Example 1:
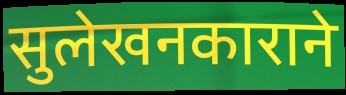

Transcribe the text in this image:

सुलेखनकाराने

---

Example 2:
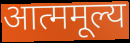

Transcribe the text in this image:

आत्ममूल्य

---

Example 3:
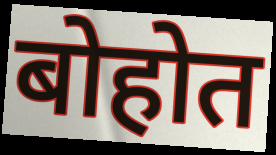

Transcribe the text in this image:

बोहोत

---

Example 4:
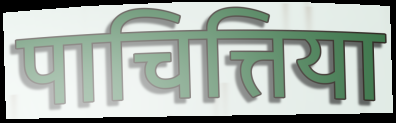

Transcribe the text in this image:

पाचित्तिया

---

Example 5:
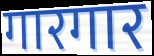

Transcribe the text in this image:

गारगार